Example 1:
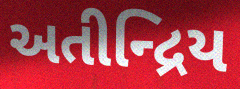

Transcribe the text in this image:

અતીન્દ્રિય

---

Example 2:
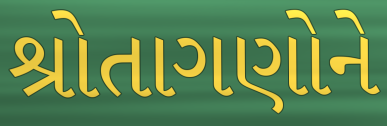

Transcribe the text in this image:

શ્રોતાગણોને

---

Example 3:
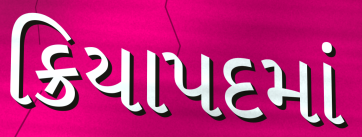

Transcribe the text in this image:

ક્રિયાપદમાં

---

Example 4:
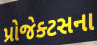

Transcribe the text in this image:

પ્રોજેક્ટસના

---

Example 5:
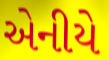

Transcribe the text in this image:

એનીયે